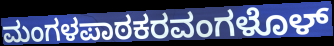
ಮಂಗಳಪಾಠಕರವಂಗಳೊಳ್